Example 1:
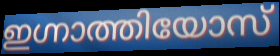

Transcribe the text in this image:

ഇഗ്നാത്തിയോസ്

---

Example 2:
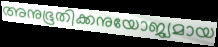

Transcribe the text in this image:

അനുഭൂതിക്കനുയോജ്യമായ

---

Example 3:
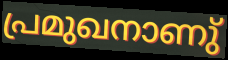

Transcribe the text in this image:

പ്രമുഖനാണു്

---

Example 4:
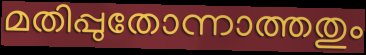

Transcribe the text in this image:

മതിപ്പുതോന്നാത്തതും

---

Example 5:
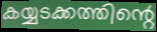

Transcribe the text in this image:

കയ്യടക്കത്തിന്റെ